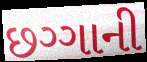
છગ્ગાની